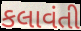
કલાવંતી